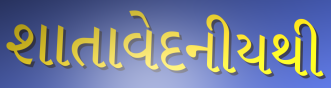
શાતાવેદનીયથી